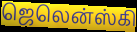
ஜெலென்ஸ்கி